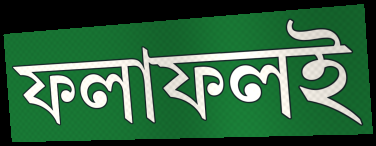
ফলাফলই